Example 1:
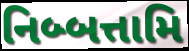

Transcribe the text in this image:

નિબ્બત્તામિ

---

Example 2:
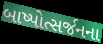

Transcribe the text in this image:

બાષ્પોત્સર્જનના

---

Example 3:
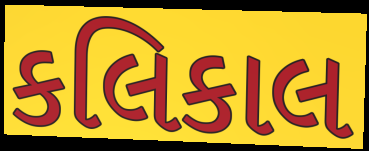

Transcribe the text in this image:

કલિકાલ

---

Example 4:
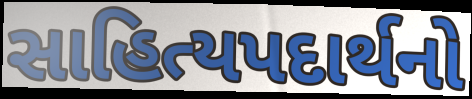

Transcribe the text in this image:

સાહિત્યપદાર્થનો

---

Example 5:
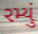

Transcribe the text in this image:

રમ્યું